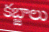
కబ్జాలు